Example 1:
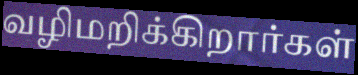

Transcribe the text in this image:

வழிமறிக்கிறார்கள்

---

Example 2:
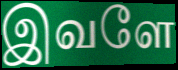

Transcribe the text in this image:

இவளே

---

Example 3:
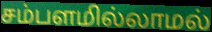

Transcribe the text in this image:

சம்பளமில்லாமல்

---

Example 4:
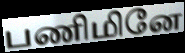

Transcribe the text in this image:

பணிமினே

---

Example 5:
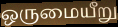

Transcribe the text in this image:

ஒருமையீறு